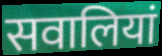
सवालियां